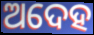
ଅଦେହ